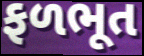
ફળભૂત